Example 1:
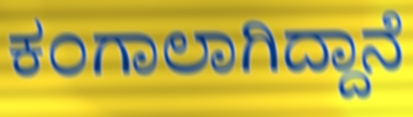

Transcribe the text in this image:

ಕಂಗಾಲಾಗಿದ್ದಾನೆ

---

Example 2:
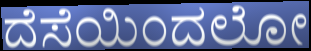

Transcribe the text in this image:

ದೆಸೆಯಿಂದಲೋ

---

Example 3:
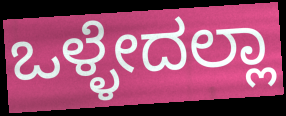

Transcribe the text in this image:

ಒಳ್ಳೇದಲ್ಲಾ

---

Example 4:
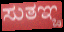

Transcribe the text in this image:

ಸುತಞ್ಚ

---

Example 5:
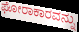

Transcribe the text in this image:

ಘೋರಾಕಾರವನ್ನು